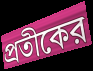
প্রতীকের